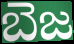
బెజ